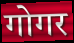
गोगर